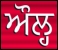
ਔਲ੍ਹ